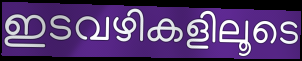
ഇടവഴികളിലൂടെ